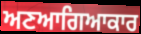
ਅਣਆਗਿਆਕਾਰ